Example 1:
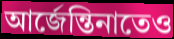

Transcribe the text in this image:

আর্জেন্তিনাতেও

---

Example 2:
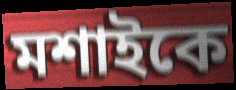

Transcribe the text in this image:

মশাইকে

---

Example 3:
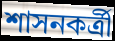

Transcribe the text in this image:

শাসনকর্ত্রী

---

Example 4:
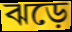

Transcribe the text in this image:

ঝড়ে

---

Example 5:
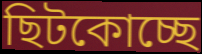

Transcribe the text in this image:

ছিটকোচ্ছে